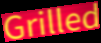
Grilled